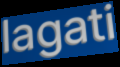
lagati